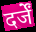
दर्जें